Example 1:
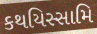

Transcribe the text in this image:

કથયિસ્સામિ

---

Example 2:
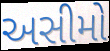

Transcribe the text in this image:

અસીમો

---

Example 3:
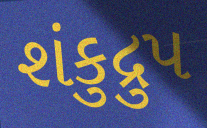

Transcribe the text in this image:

શંકુદ્રુપ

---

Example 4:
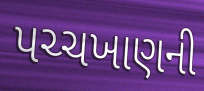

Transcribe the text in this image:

પચ્ચખાણની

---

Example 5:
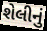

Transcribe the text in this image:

શેલીનું